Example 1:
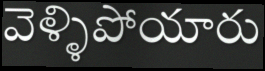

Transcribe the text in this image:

వెళ్ళిపోయారు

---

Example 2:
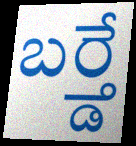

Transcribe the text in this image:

బర్త్డే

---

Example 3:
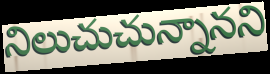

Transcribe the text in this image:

నిలుచుచున్నానని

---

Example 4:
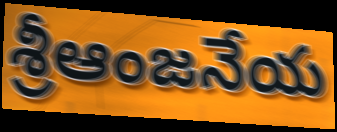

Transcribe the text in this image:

శ్రీఆంజనేయ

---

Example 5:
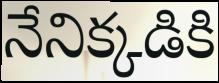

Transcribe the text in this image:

నేనిక్కడికి